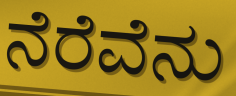
ನೆರೆವೆನು